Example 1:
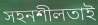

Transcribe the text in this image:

সহনশীলতাই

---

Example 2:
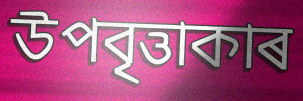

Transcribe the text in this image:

উপবৃত্তাকাৰ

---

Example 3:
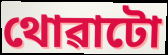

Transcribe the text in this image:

থোৱাটো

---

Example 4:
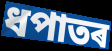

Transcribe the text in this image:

ধপাতৰ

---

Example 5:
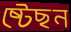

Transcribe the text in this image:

ষ্টেছন